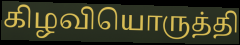
கிழவியொருத்தி